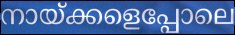
നായ്ക്കളെപ്പോലെ